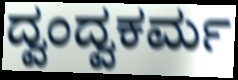
ದ್ವಂದ್ವಕರ್ಮ